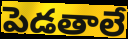
పెడతాలే